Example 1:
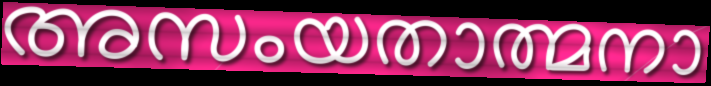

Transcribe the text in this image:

അസംയതാത്മനാ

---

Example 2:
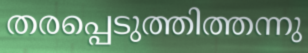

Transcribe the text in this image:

തരപ്പെടുത്തിത്തന്നു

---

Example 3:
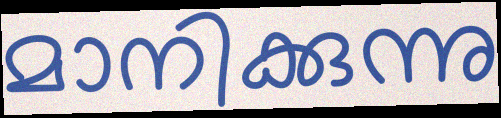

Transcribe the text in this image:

മാനിക്കുന്നു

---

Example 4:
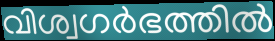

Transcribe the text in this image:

വിശ്വഗർഭത്തിൽ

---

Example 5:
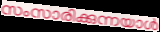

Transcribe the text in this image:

സംസാരിക്കുന്നയാൾ